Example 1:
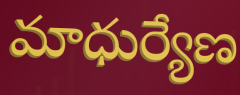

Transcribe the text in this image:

మాధుర్యేణ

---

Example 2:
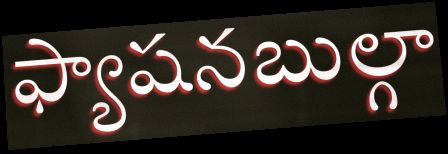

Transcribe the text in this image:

ఫ్యాషనబుల్గా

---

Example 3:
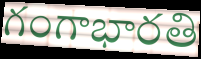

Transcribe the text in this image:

గంగాభారతి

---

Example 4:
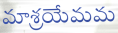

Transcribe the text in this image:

మాశ్రయేమమ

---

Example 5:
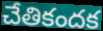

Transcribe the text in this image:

చేతికందక